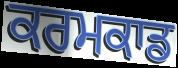
ਕਰਮਕਾਡ